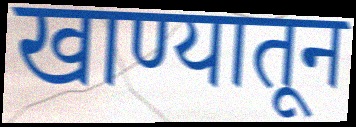
खाण्यातून